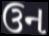
ઉન